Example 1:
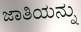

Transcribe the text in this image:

ಜಾತಿಯನ್ನು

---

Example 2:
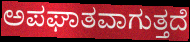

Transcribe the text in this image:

ಅಪಘಾತವಾಗುತ್ತದೆ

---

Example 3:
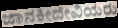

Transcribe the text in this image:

ಜಾನಕೀದೇವಿಯರು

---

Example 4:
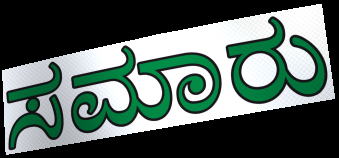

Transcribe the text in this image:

ಸಮಾರು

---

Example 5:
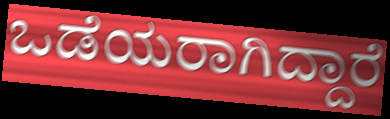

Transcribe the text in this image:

ಒಡೆಯರಾಗಿದ್ದಾರೆ